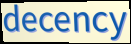
decency